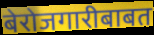
बेरोजगारीबाबत